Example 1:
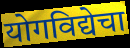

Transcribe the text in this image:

योगविद्येचा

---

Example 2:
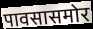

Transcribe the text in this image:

पावसासमोर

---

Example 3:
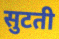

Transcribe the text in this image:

सुटती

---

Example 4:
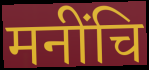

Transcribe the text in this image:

मनींचि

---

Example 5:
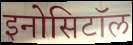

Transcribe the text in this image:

इनोसिटॉल